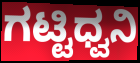
ಗಟ್ಟಿಧ್ವನಿ